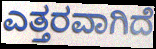
ಎತ್ತರವಾಗಿದೆ